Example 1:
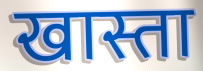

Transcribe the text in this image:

खास्ता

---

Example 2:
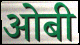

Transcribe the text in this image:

ओबी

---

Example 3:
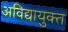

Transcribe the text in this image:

अविद्यायुक्त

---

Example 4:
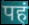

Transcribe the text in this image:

पहं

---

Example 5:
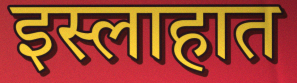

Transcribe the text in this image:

इस्लाहात